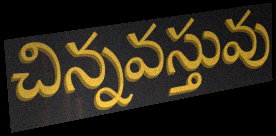
చిన్నవస్తువు